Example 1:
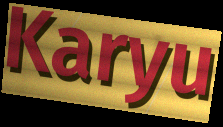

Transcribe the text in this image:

Karyu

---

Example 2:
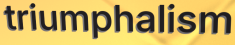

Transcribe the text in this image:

triumphalism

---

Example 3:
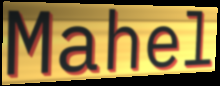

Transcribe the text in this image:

Mahel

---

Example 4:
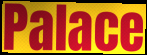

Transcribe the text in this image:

Palace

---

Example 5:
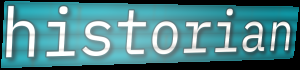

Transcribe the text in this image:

historian